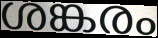
ശങ്കരം